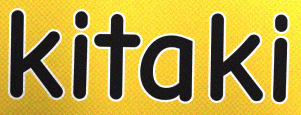
kitaki